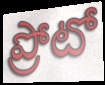
ప్రోటో